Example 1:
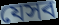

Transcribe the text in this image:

যেসব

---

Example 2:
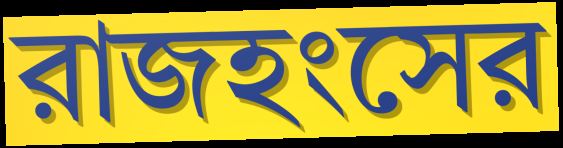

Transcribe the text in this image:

রাজহংসের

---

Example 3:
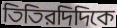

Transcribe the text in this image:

তিতিরদিদিকে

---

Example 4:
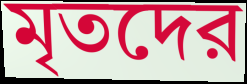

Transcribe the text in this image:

মৃতদের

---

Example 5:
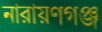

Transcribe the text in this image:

নারায়ণগঞ্জ